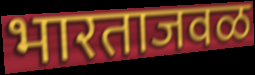
भारताजवळ